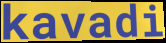
kavadi